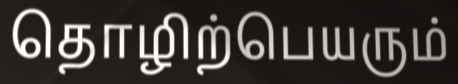
தொழிற்பெயரும்